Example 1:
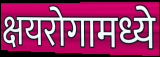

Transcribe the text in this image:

क्षयरोगामध्ये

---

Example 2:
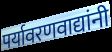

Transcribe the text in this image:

पर्यावरणवाद्यांनी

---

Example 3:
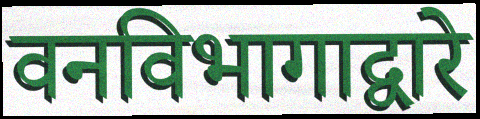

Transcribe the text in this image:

वनविभागाद्वारे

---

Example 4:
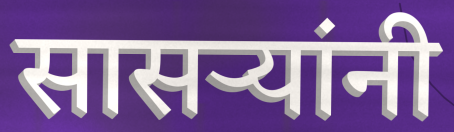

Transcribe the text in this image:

सासर्‍यांनी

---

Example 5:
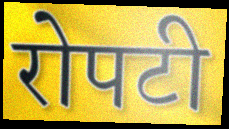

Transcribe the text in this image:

रोपटी